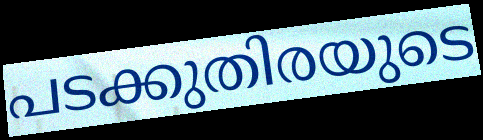
പടക്കുതിരയുടെ